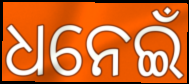
ଧନେଇଁ